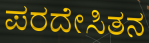
ಪರದೇಸಿತನ